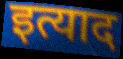
इत्याद